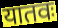
यातवः